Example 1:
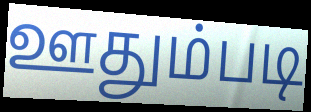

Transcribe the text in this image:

ஊதும்படி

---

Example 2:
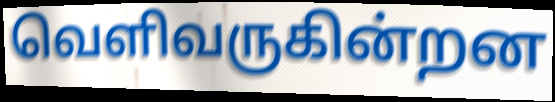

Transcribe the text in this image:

வெளிவருகின்றன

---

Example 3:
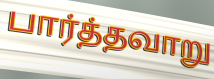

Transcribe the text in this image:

பார்த்தவாறு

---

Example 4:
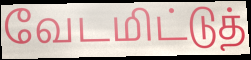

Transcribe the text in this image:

வேடமிட்டுத்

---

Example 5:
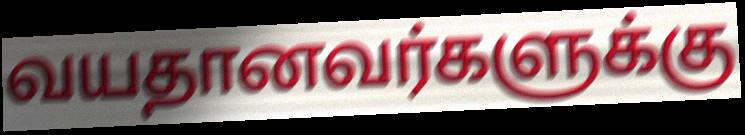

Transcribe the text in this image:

வயதானவர்களுக்கு